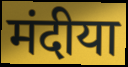
मंदीया